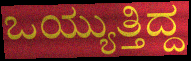
ಒಯ್ಯುತ್ತಿದ್ದ